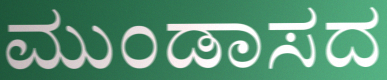
ಮುಂಡಾಸದ